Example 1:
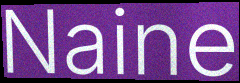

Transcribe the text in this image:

Naine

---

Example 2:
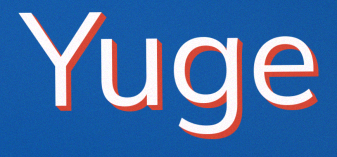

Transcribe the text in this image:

Yuge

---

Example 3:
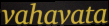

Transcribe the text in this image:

vahavata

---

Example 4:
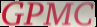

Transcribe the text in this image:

GPMC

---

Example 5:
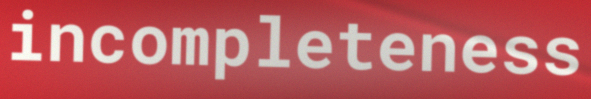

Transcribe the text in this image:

incompleteness